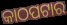
କାଠପଟାର